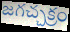
జగచ్చక్రం